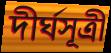
দীর্ঘসূত্রী